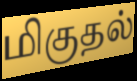
மிகுதல்